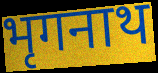
भृगनाथ